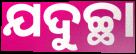
ଯଦୁଚ୍ଛା